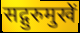
सद्गुरुमुखें